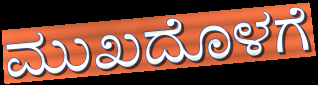
ಮುಖದೊಳಗೆ